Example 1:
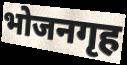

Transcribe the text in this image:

भोजनगृह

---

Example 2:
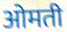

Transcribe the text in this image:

ओमती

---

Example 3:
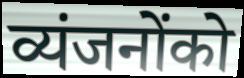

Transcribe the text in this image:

व्यंजनोंको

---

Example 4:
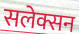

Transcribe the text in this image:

सलेक्सन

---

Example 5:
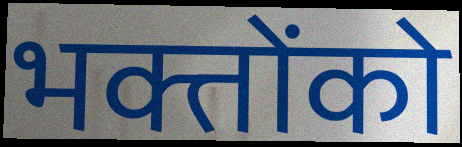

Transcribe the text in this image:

भक्तोंको